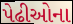
પેઢીઓના